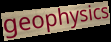
geophysics